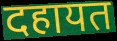
दहायत